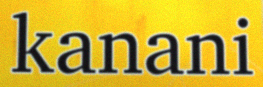
kanani